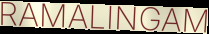
RAMALINGAM